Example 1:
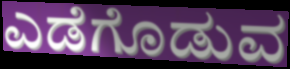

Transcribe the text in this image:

ಎಡೆಗೊಡುವ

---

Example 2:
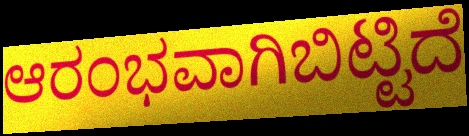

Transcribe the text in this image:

ಆರಂಭವಾಗಿಬಿಟ್ಟಿದೆ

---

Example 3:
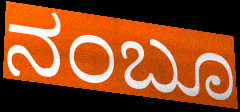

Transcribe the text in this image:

ನಂಬೂ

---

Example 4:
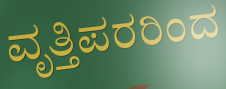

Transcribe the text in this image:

ವೃತ್ತಿಪರರಿಂದ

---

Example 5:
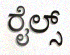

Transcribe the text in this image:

ರೈಲ್ಸ್